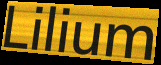
Lilium